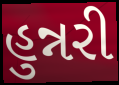
હુન્નરી